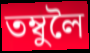
তম্বুলৈ